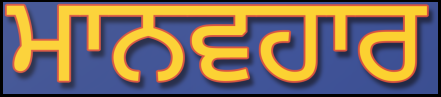
ਮਾਨਵਹਾਰ